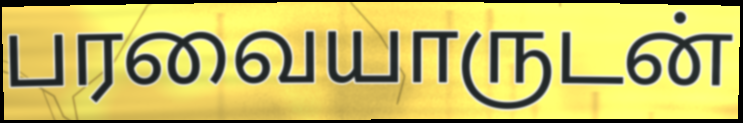
பரவையாருடன்